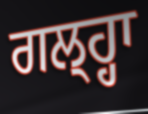
ਗਲ੍ਹ੍ਹਾ